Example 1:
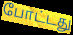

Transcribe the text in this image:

போட்டது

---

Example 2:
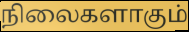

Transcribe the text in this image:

நிலைகளாகும்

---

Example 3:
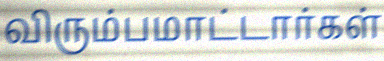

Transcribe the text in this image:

விரும்பமாட்டார்கள்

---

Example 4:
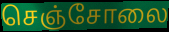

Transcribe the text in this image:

செஞ்சோலை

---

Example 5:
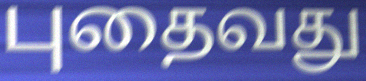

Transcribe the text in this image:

புதைவது